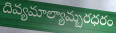
దివ్యమాల్యామ్బరధరం